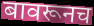
बावरूनच